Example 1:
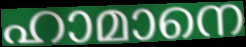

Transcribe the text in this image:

ഹാമാനെ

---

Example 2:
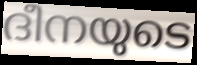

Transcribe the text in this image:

ദീനയുടെ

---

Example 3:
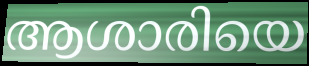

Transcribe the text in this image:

ആശാരിയെ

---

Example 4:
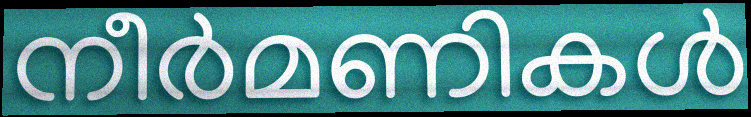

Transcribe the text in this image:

നീർമണികൾ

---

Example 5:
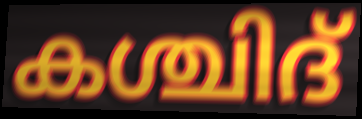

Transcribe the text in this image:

കശ്ചിദ്